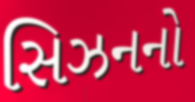
સિઝનનો